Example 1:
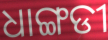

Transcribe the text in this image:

ଧାଙ୍ଗଡୀ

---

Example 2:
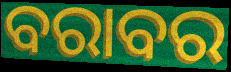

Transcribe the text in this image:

ବରାବର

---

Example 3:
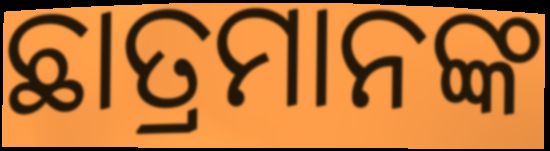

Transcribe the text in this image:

ଛାତ୍ରମାନଙ୍କ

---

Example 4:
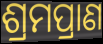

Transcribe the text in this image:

ଶ୍ରମପ୍ରାଣ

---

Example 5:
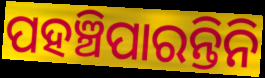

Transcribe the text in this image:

ପହଞ୍ଚିପାରନ୍ତିନି